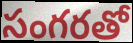
సంగరతో